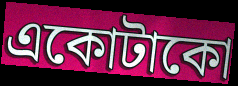
একোটাকো